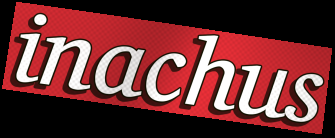
inachus